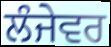
ਲੰਜੇਵਰ